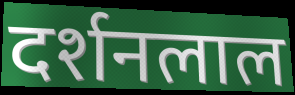
दर्शनलाल